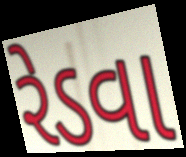
રેડવા